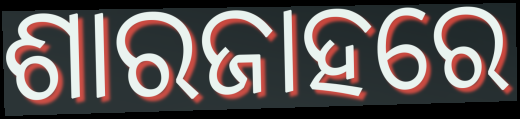
ଶାରଜାହରେ